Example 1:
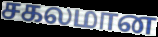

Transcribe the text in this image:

சகலமான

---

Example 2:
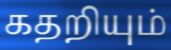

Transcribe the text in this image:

கதறியும்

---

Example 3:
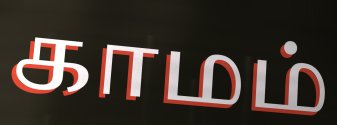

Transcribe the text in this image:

காமம்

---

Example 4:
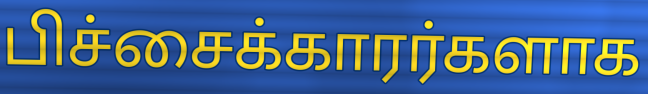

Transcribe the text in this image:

பிச்சைக்காரர்களாக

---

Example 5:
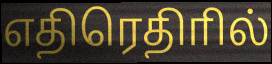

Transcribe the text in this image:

எதிரெதிரில்